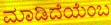
ಮಾಡಿದೆಯೆಂಬ